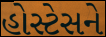
હોસ્ટેસને